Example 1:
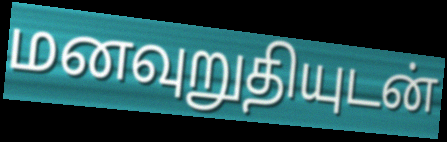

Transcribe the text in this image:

மனவுறுதியுடன்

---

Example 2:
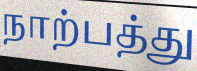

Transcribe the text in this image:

நாற்பத்து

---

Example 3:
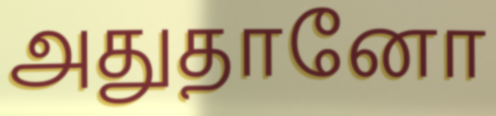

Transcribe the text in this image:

அதுதானோ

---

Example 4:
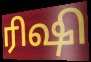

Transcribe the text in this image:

ரிஷி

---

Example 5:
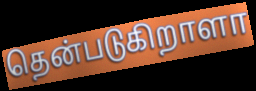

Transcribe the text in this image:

தென்படுகிறாளா